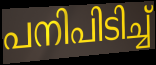
പനിപിടിച്ച്